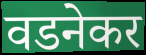
वडनेकर